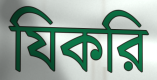
যিকরি